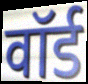
वॉर्ड